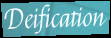
Deification